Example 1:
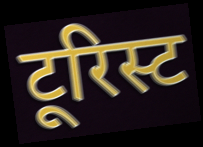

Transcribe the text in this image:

टूरिस्ट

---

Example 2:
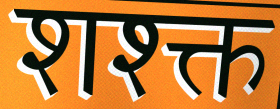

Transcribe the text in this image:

शश्क्त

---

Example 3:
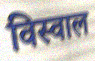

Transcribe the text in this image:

विस्वाल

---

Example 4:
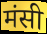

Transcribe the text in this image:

मंसी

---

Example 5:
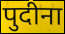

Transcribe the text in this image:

पुदीना